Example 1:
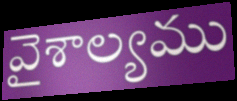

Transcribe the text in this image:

వైశాల్యము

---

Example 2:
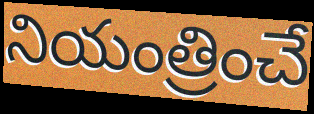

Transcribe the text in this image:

నియంత్రించే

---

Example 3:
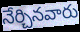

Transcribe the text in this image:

నేర్చినవారు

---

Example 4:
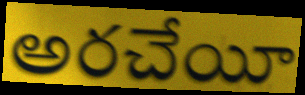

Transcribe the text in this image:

అరచేయీ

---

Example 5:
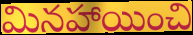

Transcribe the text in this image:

మినహాయించి